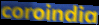
coroindia